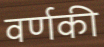
वर्णकी